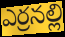
ఎర్రనల్లి